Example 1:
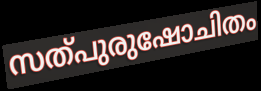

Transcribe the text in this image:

സത്പുരുഷോചിതം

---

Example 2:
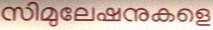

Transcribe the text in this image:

സിമുലേഷനുകളെ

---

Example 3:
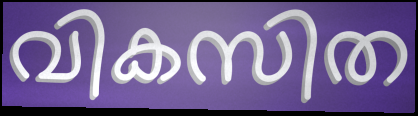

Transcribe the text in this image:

വികസിത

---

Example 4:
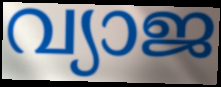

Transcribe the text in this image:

വ്യാജ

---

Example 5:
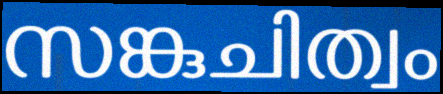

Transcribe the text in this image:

സങ്കുചിത്വം